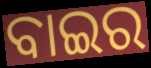
ବାଇର